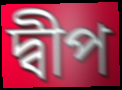
দ্বীপ